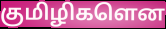
குமிழிகளென